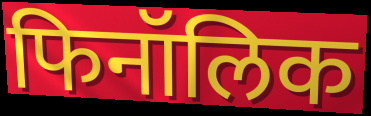
फिनॉलिक